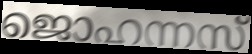
ജൊഹന്നസ്